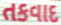
તકવાદ